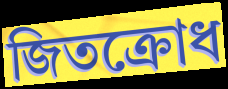
জিতক্রোধ